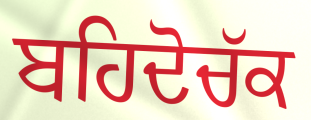
ਬਹਿਦੋਚੱਕ